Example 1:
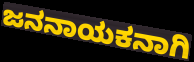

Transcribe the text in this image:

ಜನನಾಯಕನಾಗಿ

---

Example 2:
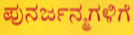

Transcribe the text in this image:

ಪುನರ್ಜನ್ಮಗಳಿಗೆ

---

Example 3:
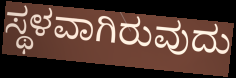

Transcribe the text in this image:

ಸ್ಥಳವಾಗಿರುವುದು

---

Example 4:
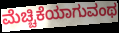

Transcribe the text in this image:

ಮೆಚ್ಚಿಕೆಯಾಗುವಂಥ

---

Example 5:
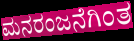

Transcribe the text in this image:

ಮನರಂಜನೆಗಿಂತ